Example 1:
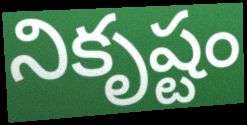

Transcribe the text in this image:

నికృష్టం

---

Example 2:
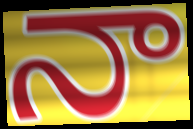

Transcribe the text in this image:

నా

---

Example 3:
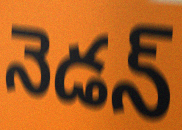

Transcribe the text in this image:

నెడన్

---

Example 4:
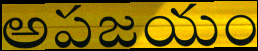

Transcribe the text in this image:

అపజయం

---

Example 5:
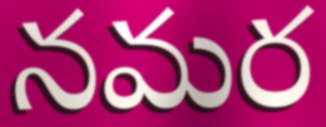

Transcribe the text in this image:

నమర